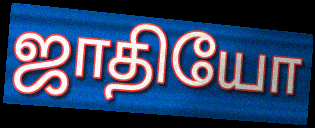
ஜாதியோ